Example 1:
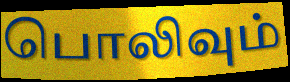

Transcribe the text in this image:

பொலிவும்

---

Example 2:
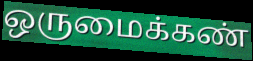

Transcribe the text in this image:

ஒருமைக்கண்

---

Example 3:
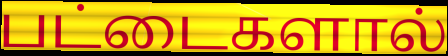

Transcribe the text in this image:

பட்டைகளால்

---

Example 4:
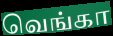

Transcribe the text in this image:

வெங்கா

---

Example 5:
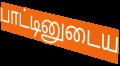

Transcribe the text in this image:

பாட்டினுடைய